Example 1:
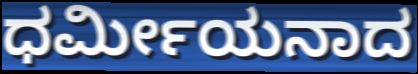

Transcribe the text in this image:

ಧರ್ಮೀಯನಾದ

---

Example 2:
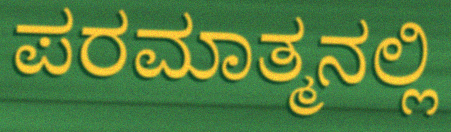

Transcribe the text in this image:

ಪರಮಾತ್ಮನಲ್ಲಿ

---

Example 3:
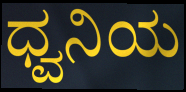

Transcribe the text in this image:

ಧ್ವನಿಯ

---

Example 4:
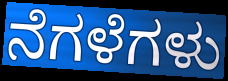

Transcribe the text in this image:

ನೆಗಳೆಗಳು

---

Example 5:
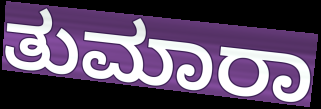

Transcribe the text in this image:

ತುಮಾರಾ